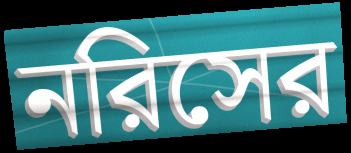
নরিসের